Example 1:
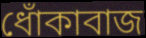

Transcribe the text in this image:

ধোঁকাবাজ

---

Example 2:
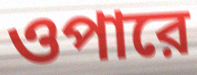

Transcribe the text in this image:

ওপারে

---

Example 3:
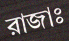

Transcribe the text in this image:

রাজাঃ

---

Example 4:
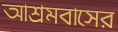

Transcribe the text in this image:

আশ্রমবাসের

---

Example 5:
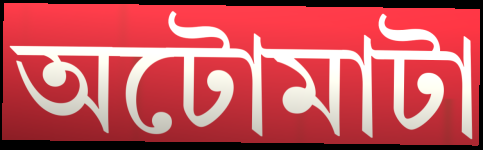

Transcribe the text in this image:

অটোমাটা